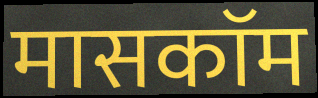
मासकॉम